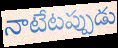
నాటేటప్పుడు